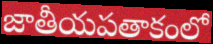
జాతీయపతాకంలో